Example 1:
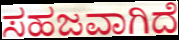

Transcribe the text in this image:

ಸಹಜವಾಗಿದೆ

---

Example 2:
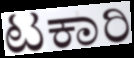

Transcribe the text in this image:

ಟಕಾರಿ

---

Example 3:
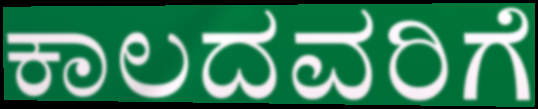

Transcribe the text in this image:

ಕಾಲದವರಿಗೆ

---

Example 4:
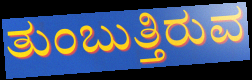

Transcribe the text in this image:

ತುಂಬುತ್ತಿರುವ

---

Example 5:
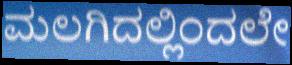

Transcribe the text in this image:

ಮಲಗಿದಲ್ಲಿಂದಲೇ